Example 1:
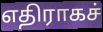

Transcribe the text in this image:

எதிராகச்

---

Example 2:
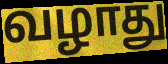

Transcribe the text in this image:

வழாது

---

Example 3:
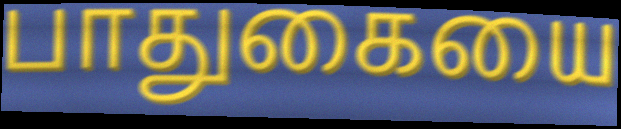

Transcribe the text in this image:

பாதுகையை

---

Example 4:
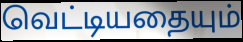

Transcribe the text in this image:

வெட்டியதையும்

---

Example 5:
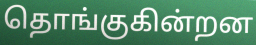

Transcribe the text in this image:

தொங்குகின்றன